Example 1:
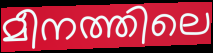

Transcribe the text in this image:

മീനത്തിലെ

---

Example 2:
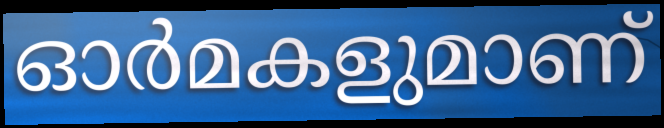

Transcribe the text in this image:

ഓർമകളുമാണ്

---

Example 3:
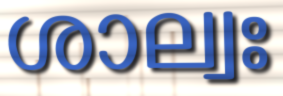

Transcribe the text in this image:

ശാല്വഃ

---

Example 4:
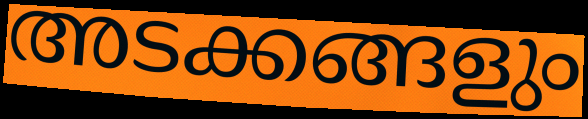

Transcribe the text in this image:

അടക്കങ്ങളും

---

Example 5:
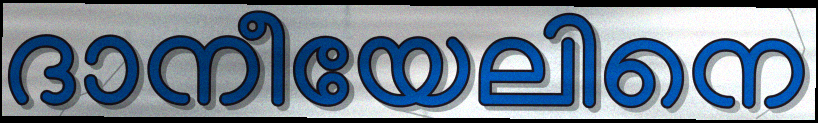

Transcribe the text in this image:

ദാനീയേലിനെ